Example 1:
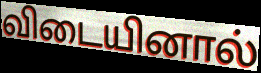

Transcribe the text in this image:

விடையினால்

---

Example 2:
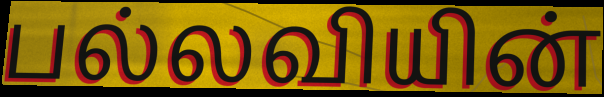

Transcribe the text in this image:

பல்லவியின்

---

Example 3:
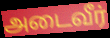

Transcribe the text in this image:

அடைவீர்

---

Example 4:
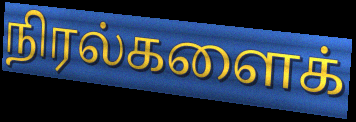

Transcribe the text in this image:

நிரல்களைக்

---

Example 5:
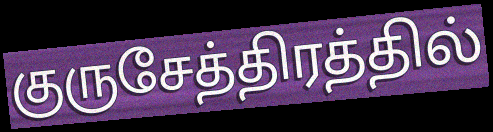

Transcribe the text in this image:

குருசேத்திரத்தில்